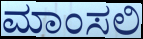
ಮಾಂಸಲಿ